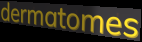
dermatomes